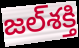
జల్‌శక్తి